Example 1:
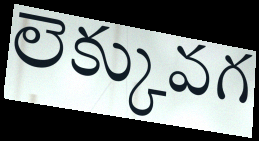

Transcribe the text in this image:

లెక్కువగ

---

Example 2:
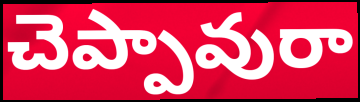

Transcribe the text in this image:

చెప్పావురా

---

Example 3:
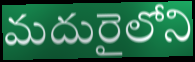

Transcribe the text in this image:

మదురైలోని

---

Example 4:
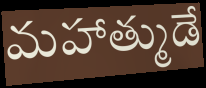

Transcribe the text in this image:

మహాత్ముడే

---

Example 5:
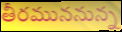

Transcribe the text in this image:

తీరముననున్న